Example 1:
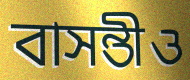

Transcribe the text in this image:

বাসন্তীও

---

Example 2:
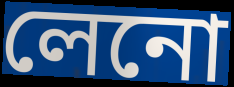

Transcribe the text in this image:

লেনো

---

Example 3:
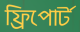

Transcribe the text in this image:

ফ্রিপোর্ট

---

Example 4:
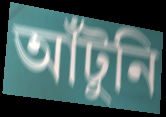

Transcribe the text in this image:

আঁটুনি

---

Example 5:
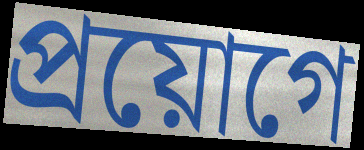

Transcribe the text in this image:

প্রয়োগে